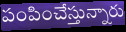
పంపించేస్తున్నారు